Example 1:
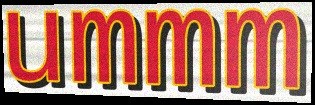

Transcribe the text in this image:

ummm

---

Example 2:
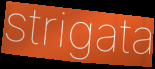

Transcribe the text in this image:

strigata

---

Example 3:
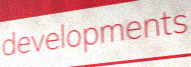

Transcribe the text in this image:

developments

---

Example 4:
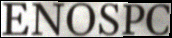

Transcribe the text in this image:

ENOSPC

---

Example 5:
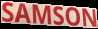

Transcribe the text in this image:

SAMSON